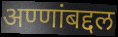
अण्णांबद्दल